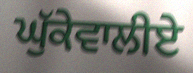
ਘੁੱਕੇਵਾਲੀਏ